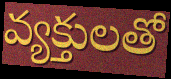
వ్యక్తులతో